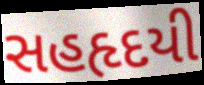
સહહૃદયી